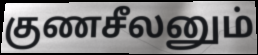
குணசீலனும்